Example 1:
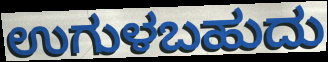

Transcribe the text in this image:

ಉಗುಳಬಹುದು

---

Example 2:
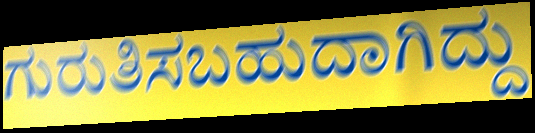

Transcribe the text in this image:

ಗುರುತಿಸಬಹುದಾಗಿದ್ದು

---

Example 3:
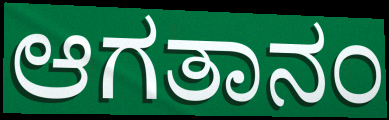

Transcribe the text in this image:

ಆಗತಾನಂ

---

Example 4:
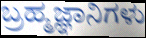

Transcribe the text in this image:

ಬ್ರಹ್ಮಜ್ಞಾನಿಗಳು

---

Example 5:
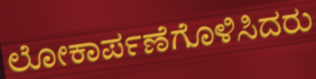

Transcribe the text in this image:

ಲೋಕಾರ್ಪಣೆಗೊಳಿಸಿದರು